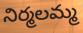
నిర్మలమ్మ